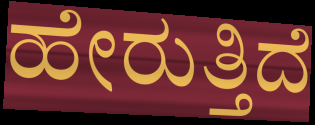
ಹೇರುತ್ತಿದೆ